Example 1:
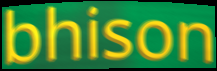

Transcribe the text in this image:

bhison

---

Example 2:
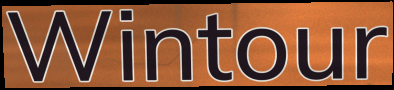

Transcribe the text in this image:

Wintour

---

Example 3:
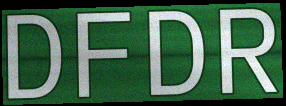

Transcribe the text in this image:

DFDR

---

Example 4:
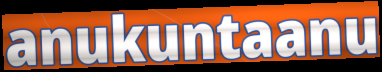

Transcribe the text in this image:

anukuntaanu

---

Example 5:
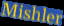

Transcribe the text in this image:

Mishler